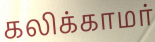
கலிக்காமர்